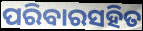
ପରିବାରସହିତ